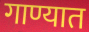
गाण्यात